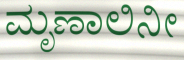
ಮೃಣಾಲಿನೀ